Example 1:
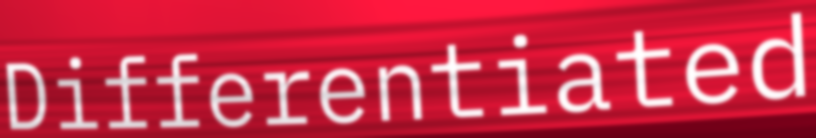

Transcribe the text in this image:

Differentiated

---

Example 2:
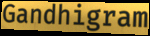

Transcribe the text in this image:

Gandhigram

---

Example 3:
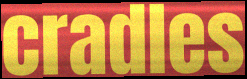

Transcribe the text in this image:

cradles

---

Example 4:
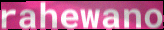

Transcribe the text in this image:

rahewano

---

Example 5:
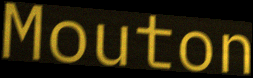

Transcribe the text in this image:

Mouton